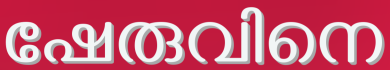
ഷേരുവിനെ